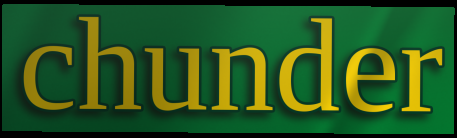
chunder